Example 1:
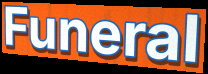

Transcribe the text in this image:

Funeral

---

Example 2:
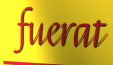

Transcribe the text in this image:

fuerat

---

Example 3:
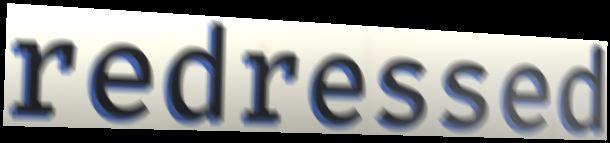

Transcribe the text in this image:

redressed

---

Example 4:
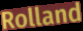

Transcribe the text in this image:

Rolland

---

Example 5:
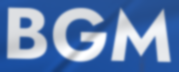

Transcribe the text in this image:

BGM